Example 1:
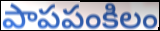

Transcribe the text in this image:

పాపపంకిలం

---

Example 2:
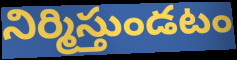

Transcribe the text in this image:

నిర్మిస్తుండటం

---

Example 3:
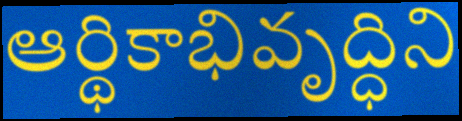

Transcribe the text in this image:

ఆర్థికాభివృద్ధిని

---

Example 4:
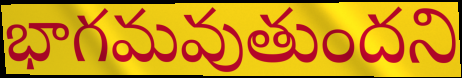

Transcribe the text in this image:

భాగమవుతుందని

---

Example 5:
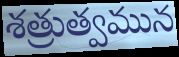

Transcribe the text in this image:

శత్రుత్వమున